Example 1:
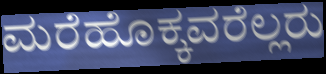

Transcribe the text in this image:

ಮರೆಹೊಕ್ಕವರೆಲ್ಲರು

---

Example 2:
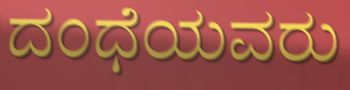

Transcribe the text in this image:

ದಂಧೆಯವರು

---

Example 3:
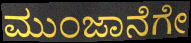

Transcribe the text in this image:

ಮುಂಜಾನೆಗೇ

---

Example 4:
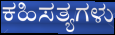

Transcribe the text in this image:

ಕಹಿಸತ್ಯಗಳು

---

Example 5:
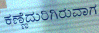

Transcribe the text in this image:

ಕಣ್ಣೆದುರಿಗಿರುವಾಗ